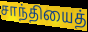
சாந்தியைத்